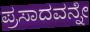
ಪ್ರಸಾದವನ್ನೇ